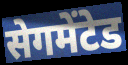
सेगमेंटेड